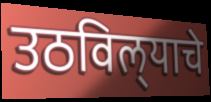
उठविल्याचे